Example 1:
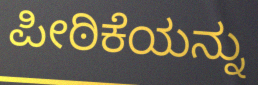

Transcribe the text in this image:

ಪೀಠಿಕೆಯನ್ನು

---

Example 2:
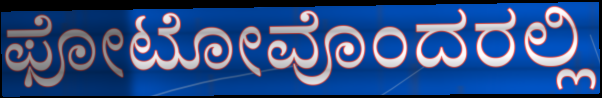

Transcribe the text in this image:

ಫೋಟೋವೊಂದರಲ್ಲಿ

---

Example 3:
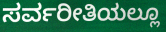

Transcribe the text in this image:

ಸರ್ವರೀತಿಯಲ್ಲೂ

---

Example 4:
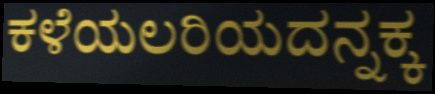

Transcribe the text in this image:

ಕಳೆಯಲರಿಯದನ್ನಕ್ಕ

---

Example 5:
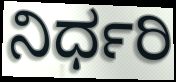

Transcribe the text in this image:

ನಿರ್ಧರಿ